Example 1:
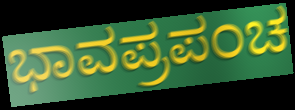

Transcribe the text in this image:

ಭಾವಪ್ರಪಂಚ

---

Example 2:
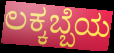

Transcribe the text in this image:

ಲಕ್ಕಬ್ಬೆಯ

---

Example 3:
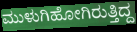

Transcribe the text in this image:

ಮುಳುಗಿಹೋಗಿರುತ್ತಿದ್ದ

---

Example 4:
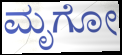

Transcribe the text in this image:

ಮೃಗೋ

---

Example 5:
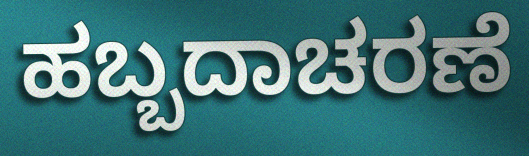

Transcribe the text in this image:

ಹಬ್ಬದಾಚರಣೆ